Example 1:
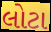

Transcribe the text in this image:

લોટા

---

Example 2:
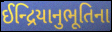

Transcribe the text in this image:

ઈન્દ્રિયાનુભૂતિના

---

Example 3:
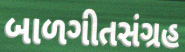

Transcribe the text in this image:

બાળગીતસંગ્રહ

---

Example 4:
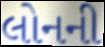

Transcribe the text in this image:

લોનની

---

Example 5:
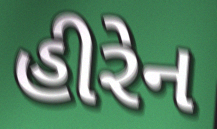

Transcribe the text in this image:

હીરેન